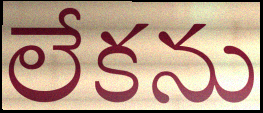
లేకను